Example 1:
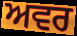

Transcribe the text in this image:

ਅਵਰ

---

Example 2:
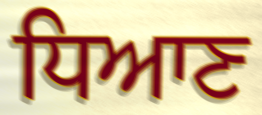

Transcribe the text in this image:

ਧਿਆਣ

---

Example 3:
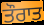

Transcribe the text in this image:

ਤੌਰਾਤ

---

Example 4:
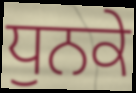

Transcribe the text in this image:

ਧੁਨਕੇ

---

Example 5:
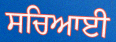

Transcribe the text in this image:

ਸਚਿਆਈ